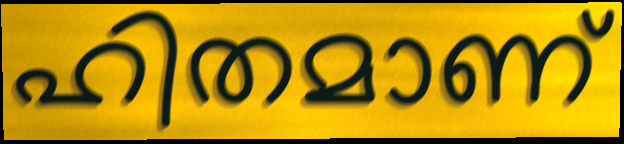
ഹിതമാണ്